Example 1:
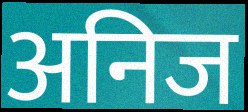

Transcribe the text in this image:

अनिज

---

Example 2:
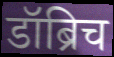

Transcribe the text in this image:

डॉब्रिच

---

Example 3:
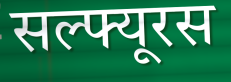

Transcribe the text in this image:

सल्फ्यूरस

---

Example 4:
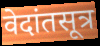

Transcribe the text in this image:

वेदांतसूत्र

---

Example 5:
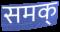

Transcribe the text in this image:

समक्